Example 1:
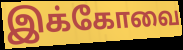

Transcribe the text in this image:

இக்கோவை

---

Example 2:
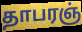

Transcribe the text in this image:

தாபரஞ்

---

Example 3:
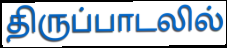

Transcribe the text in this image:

திருப்பாடலில்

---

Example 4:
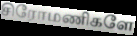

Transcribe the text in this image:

சிரோமணிகளே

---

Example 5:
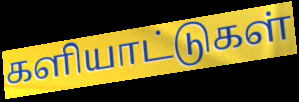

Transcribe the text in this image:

களியாட்டுகள்